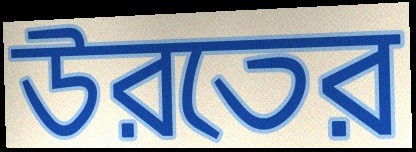
উরতের